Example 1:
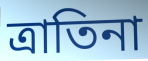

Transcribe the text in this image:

ত্রাতিনা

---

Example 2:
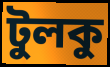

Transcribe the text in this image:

টুলকু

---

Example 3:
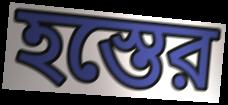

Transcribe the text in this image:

হস্তের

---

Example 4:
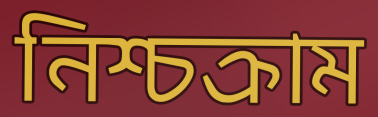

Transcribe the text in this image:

নিশ্চক্রাম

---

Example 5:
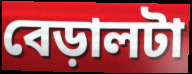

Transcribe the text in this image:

বেড়ালটা